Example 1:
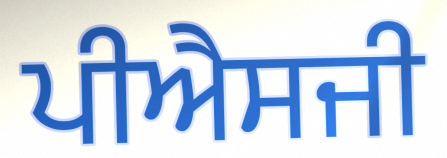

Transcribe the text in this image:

ਪੀਐਸਜੀ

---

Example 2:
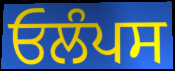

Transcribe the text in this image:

ਓਲੰਪਸ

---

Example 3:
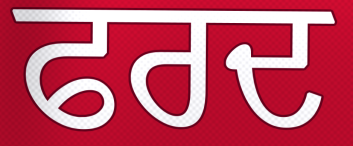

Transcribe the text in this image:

ਫਰਦ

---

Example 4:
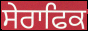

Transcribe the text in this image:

ਸੇਰਾਫਿਕ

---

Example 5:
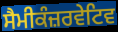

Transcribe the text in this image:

ਸੈਮੀਕੰਜ਼ਰਵੇਟਿਵ